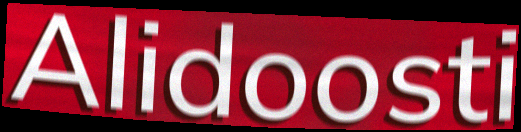
Alidoosti